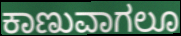
ಕಾಣುವಾಗಲೂ